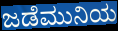
ಜಡೆಮುನಿಯ